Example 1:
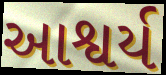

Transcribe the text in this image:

આશ્વર્ય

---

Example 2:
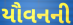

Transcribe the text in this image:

યૌવનની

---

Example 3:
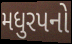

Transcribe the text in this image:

મધુરપનો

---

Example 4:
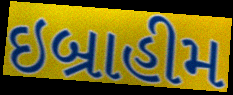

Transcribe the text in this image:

ઇબ્રાહીમ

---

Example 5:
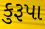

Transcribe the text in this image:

કુરૂપા